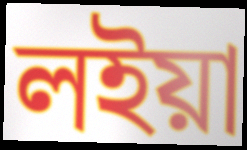
লইয়া